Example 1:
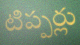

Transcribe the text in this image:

టిప్పర్లు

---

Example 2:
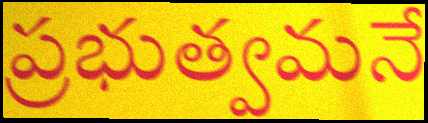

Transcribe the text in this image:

ప్రభుత్వమనే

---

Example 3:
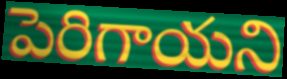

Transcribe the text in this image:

పెరిగాయని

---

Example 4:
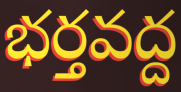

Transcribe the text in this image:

భర్తవద్ద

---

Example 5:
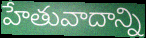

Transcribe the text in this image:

హేతువాదాన్ని